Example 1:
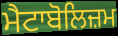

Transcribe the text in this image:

ਮੈਟਾਬੋਲਿਜ਼ਮ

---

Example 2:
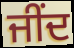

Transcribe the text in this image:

ਜੀਂਦ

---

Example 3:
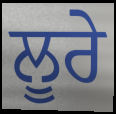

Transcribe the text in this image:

ਲੂਰੇ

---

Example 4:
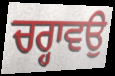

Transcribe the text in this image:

ਚਰ੍ਹਾਵਉ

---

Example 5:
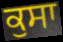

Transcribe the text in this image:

ਕੁਸਾ